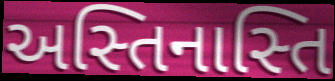
અસ્તિનાસ્તિ